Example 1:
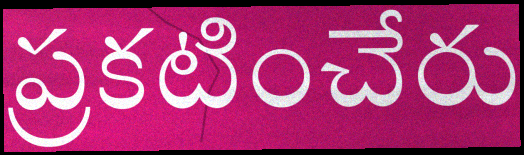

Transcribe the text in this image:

ప్రకటించేరు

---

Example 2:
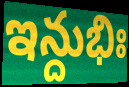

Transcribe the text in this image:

ఇన్దుభిః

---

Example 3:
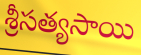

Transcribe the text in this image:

శ్రీసత్యసాయి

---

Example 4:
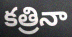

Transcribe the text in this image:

కత్రినా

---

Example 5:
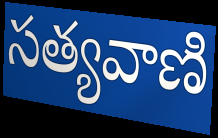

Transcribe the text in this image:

సత్యవాణి